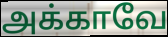
அக்காவே